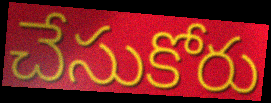
చేసుకోరు